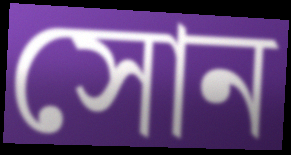
সোন